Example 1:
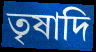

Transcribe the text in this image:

তৃষাদি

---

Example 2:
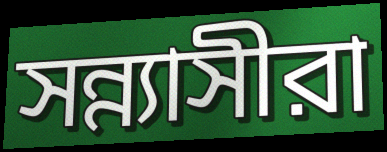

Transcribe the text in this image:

সন্ন্যাসীরা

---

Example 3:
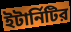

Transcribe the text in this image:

ইটার্নিটির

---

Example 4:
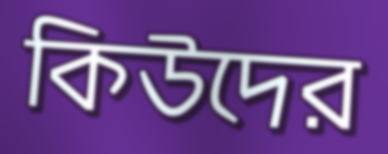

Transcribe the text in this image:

কিউদের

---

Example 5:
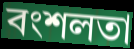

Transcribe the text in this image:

বংশলতা